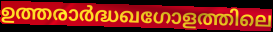
ഉത്തരാർദ്ധഖഗോളത്തിലെ